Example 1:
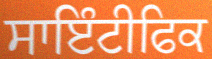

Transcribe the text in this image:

ਸਾਇੰਟੀਫਿਕ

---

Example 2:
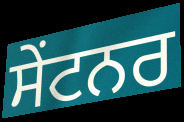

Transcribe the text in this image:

ਸੇਂਟਨਰ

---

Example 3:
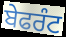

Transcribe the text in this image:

ਬੇਫਰੰਟ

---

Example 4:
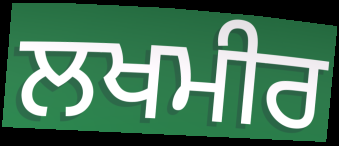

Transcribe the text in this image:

ਲਖਮੀਰ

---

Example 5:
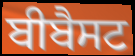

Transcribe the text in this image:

ਬੀਬੈਸਟ